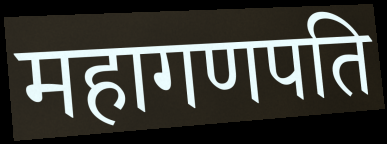
महागणपति